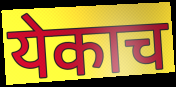
येकाच